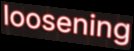
loosening